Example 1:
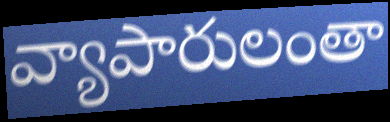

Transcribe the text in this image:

వ్యాపారులంతా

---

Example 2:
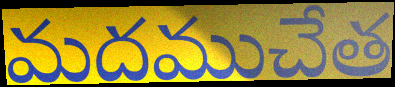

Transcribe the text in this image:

మదముచేత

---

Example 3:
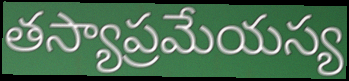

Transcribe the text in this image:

తస్యాప్రమేయస్య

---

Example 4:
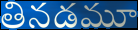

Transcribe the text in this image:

తినడమూ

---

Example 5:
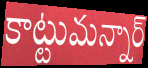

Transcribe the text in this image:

కాట్టుమన్నార్